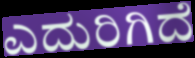
ಎದುರಿಗಿದೆ